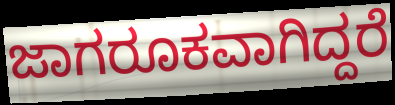
ಜಾಗರೂಕವಾಗಿದ್ದರೆ